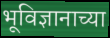
भूविज्ञानाच्या